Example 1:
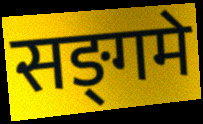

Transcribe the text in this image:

सङ्गमे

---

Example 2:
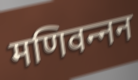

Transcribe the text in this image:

मणिवन्नन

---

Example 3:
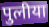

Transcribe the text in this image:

पुलीया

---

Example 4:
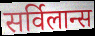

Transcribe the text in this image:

सर्विलान्स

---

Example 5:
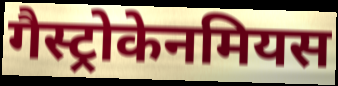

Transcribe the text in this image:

गैस्ट्रोकेनमियस